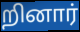
றினார்